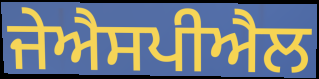
ਜੇਐਸਪੀਐਲ